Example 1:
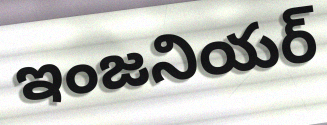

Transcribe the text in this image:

ఇంజనియర్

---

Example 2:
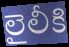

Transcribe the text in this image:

లైలీకి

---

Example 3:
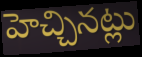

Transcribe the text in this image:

హెచ్చినట్లు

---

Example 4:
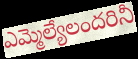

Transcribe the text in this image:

ఎమ్మెల్యేలందరినీ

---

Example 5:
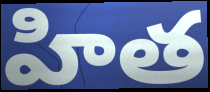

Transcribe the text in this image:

హిత